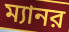
ম্যানর